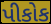
પીકોક